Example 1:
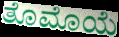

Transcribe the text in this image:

ತೊಮೊಯೆ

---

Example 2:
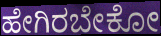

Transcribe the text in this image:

ಹೇಗಿರಬೇಕೋ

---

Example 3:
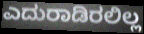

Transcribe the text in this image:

ಎದುರಾಡಿರಲಿಲ್ಲ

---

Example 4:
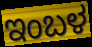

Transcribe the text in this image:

ಇಂಬಳ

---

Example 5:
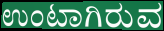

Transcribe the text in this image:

ಉಂಟಾಗಿರುವ